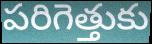
పరిగెత్తుకు